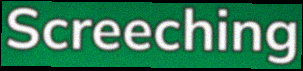
Screeching